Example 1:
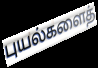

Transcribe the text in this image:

புயல்களைத்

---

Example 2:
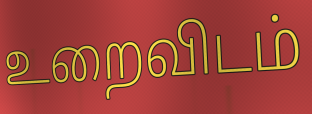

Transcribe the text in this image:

உறைவிடம்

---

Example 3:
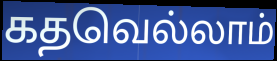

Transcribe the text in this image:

கதவெல்லாம்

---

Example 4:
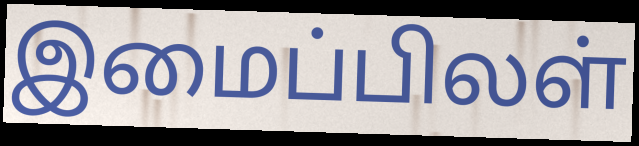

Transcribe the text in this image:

இமைப்பிலள்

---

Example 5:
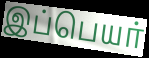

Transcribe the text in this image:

இப்பெயர்